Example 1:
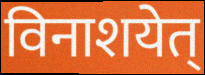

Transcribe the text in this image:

विनाशयेत्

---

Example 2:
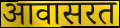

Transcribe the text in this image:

आवासरत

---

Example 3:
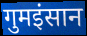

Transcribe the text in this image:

गुमइंसान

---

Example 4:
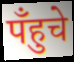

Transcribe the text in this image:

पँहुचे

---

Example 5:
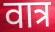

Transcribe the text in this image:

वात्र